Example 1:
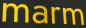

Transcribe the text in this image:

marm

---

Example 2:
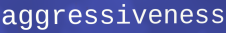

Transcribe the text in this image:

aggressiveness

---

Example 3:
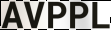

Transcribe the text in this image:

AVPPL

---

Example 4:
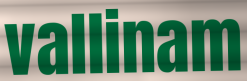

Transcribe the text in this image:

vallinam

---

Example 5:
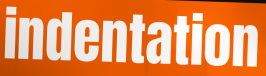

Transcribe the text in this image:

indentation